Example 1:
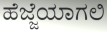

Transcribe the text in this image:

ಹೆಜ್ಜೆಯಾಗಲಿ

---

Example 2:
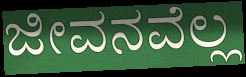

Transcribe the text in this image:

ಜೀವನವೆಲ್ಲ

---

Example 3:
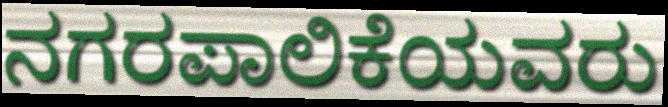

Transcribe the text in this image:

ನಗರಪಾಲಿಕೆಯವರು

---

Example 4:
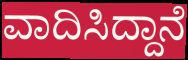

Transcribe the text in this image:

ವಾದಿಸಿದ್ದಾನೆ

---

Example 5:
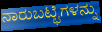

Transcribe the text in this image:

ನಾರುಬಟ್ಟೆಗಳನ್ನು